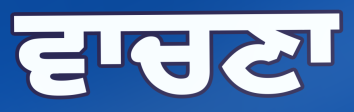
ਵਾਚਣਾ